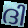
ദി